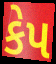
કેપ